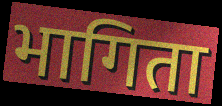
भागिता